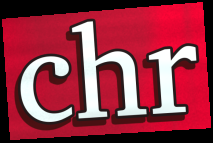
chr